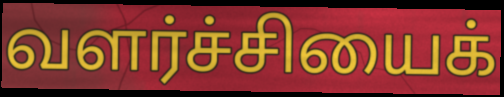
வளர்ச்சியைக்